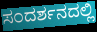
ಸಂದರ್ಶನದಲ್ಲಿ